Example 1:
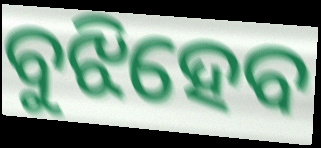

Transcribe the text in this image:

ବୁଝିହେବ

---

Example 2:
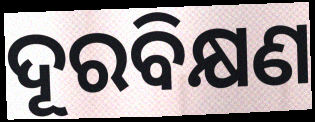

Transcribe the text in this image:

ଦୂରବିକ୍ଷଣ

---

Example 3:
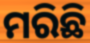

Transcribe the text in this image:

ମରିଛି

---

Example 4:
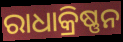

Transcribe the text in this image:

ରାଧାକ୍ରିଷ୍ଣନ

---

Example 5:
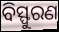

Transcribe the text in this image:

ବିସ୍ଫୁରଣ